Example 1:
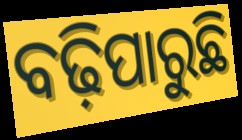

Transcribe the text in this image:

ବଢ଼ିପାରୁଛି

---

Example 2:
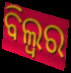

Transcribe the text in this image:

ବିଲ୍ୱର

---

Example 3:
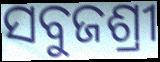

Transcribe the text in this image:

ସବୁଜଶ୍ରୀ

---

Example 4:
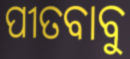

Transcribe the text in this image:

ପୀତବାବୁ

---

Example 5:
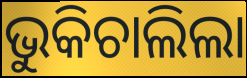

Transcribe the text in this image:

ଭୁକିଚାଲିଲା